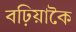
বঢ়িয়াকৈ